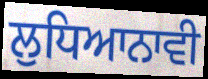
ਲੁਧਿਆਨਾਵੀ